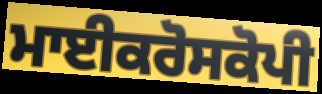
ਮਾਈਕਰੋਸਕੋਪੀ